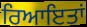
ਰਿਆਇਤਾਂ